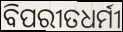
ବିପରୀତଧର୍ମୀ